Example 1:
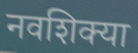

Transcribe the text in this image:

नवशिक्या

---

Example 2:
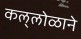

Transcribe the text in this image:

कल्लोळाने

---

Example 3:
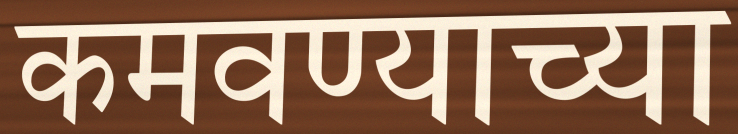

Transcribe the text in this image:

कमवण्याच्या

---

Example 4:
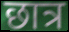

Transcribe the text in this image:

छात्र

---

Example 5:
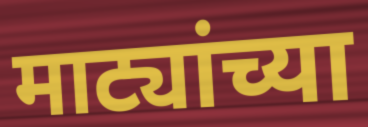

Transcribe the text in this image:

माट्यांच्या